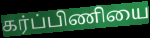
கர்ப்பிணியை